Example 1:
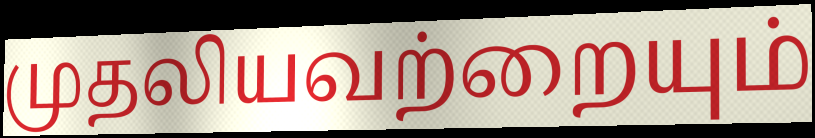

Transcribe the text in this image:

முதலியவற்றையும்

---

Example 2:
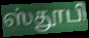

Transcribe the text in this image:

ஸ்தூபி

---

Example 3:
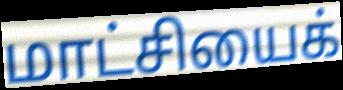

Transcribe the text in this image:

மாட்சியைக்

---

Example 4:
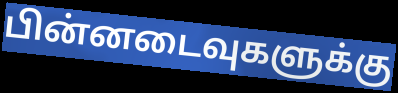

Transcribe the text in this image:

பின்னடைவுகளுக்கு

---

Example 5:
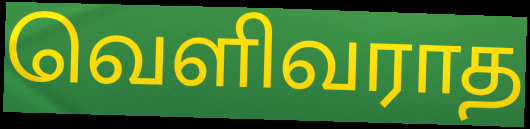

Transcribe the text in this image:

வெளிவராத